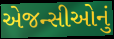
એજન્સીઓનું